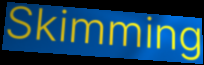
Skimming